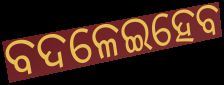
ବଦଳେଇହେବ